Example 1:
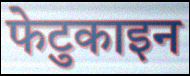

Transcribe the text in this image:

फेटुकाइन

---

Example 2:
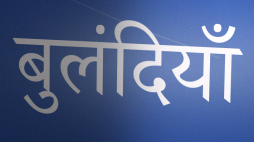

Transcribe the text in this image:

बुलंदियाँ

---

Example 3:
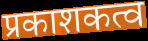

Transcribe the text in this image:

प्रकाशकत्व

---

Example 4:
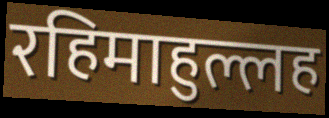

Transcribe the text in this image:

रहिमाहुल्लह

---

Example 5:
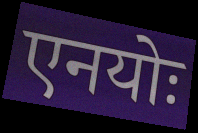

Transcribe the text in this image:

एनयोः